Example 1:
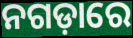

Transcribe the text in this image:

ନଗଡ଼ାରେ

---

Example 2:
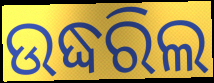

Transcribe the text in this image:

ଉଦ୍ଧରିଲ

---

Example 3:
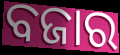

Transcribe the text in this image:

ବଜାର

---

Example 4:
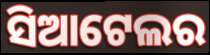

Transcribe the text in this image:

ସିଆଟେଲର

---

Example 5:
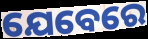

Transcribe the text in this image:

ଯେବେରେ